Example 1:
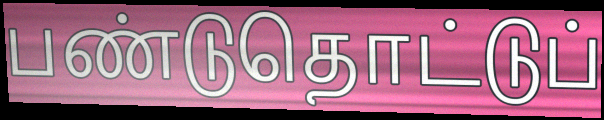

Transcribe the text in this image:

பண்டுதொட்டுப்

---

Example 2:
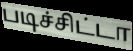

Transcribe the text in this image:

படிச்சிட்டா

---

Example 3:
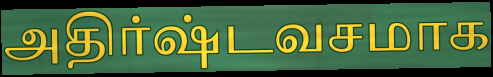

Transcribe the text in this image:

அதிர்ஷ்டவசமாக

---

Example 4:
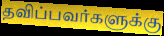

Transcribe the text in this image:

தவிப்பவர்களுக்கு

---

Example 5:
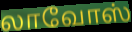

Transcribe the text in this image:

லாவோஸ்